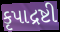
કૃપાદ્રષ્ટી